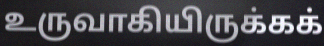
உருவாகியிருக்கக்